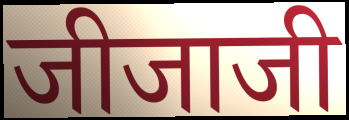
जीजाजी